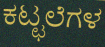
ಕಟ್ಟಲೆಗಳ